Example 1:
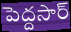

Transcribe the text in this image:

పెద్దసార్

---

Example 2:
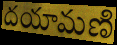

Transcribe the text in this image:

దయామణి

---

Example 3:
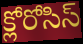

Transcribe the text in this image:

క్లోరోసిస్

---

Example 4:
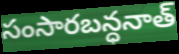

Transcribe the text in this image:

సంసారబన్ధనాత్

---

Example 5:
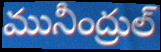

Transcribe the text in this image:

మునీంద్రుల్